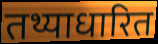
तथ्याधारित